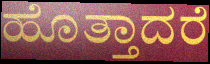
ಹೊತ್ತಾದರೆ